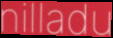
nilladu